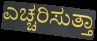
ಎಚ್ಚರಿಸುತ್ತಾ